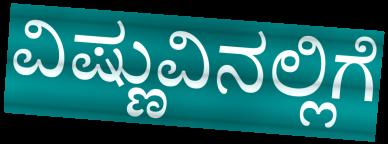
ವಿಷ್ಣುವಿನಲ್ಲಿಗೆ